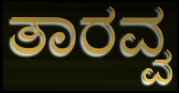
ತಾರವ್ವ